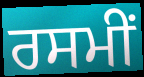
ਰਸਮੀਂ